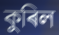
কুৰিল